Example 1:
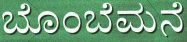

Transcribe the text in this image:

ಬೊಂಬೆಮನೆ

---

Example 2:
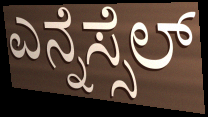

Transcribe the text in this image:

ಎನ್ನೆಸ್ಸೆಲ್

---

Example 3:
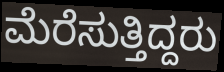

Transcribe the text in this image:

ಮೆರೆಸುತ್ತಿದ್ದರು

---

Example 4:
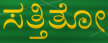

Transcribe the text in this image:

ಸತ್ತಿತೋ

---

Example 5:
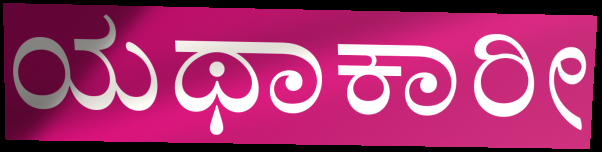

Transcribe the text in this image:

ಯಥಾಕಾರೀ